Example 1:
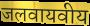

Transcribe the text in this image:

जलवायवीय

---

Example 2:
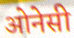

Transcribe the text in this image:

ओनेसी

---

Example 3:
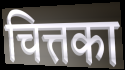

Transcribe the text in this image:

चित्तका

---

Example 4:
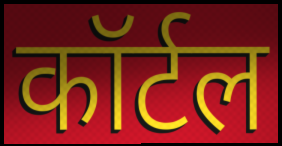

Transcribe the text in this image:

कॉर्टल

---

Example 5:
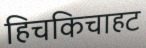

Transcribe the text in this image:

हिचकिचाहट